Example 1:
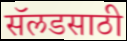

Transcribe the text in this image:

सॅलडसाठी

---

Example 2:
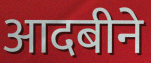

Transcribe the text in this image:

आदबीने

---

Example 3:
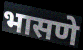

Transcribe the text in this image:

भासणे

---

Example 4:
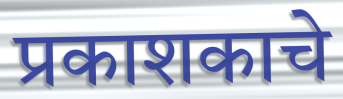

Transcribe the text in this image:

प्रकाशकाचे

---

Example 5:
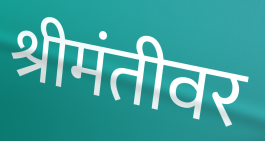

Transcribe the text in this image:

श्रीमंतीवर